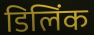
डिलिंक